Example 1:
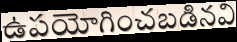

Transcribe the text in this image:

ఉపయోగించబడినవి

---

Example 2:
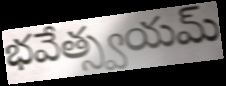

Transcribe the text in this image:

భవేత్స్వయమ్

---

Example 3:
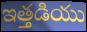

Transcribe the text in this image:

ఇత్తడియు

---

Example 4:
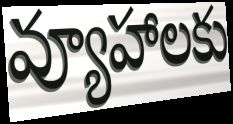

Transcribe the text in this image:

వ్యూహాలకు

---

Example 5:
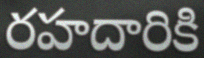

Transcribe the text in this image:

రహదారికి